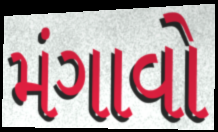
મંગાવો